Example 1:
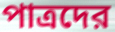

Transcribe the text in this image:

পাত্রদের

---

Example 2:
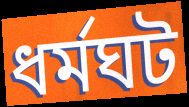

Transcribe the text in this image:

ধর্মঘট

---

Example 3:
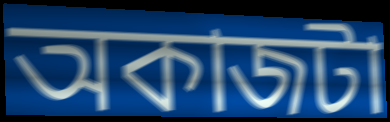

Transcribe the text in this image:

অকাজটা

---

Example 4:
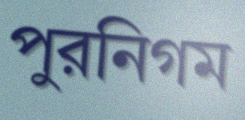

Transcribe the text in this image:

পুরনিগম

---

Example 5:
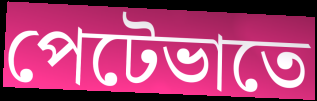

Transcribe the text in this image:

পেটেভাতে